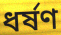
ধৰ্ষণ